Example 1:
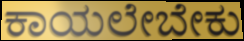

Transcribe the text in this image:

ಕಾಯಲೇಬೇಕು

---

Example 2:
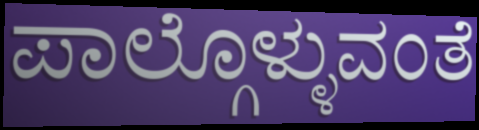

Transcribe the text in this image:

ಪಾಲ್ಗೊಳ್ಳುವಂತೆ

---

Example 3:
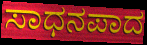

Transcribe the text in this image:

ಸಾಧನಪಾದ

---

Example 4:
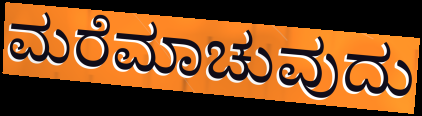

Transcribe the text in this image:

ಮರೆಮಾಚುವುದು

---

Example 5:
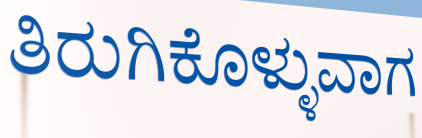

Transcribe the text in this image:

ತಿರುಗಿಕೊಳ್ಳುವಾಗ